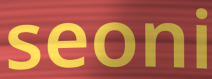
seoni